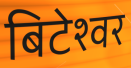
बिटेश्वर